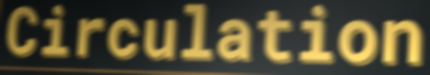
Circulation